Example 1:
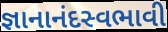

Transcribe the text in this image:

જ્ઞાનાનંદસ્વભાવી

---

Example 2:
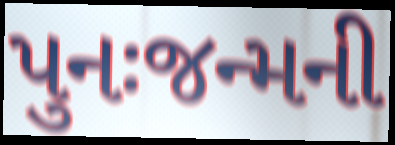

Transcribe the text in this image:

પુનઃજન્મની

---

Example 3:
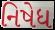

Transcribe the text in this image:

નિષેધ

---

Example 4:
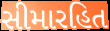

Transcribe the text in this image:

સીમારહિત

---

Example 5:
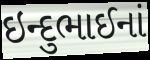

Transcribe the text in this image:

ઇન્દુભાઈનાં